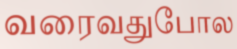
வரைவதுபோல